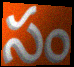
సం